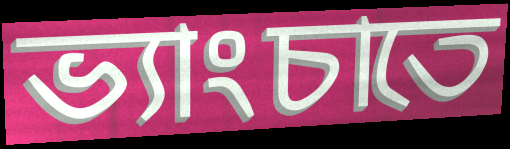
ভ্যাংচাতে